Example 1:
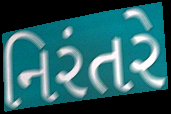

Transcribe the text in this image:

નિરંતરે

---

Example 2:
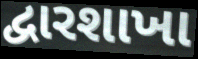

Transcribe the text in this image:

દ્વારશાખા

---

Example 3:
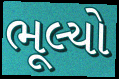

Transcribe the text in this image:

ભૂલ્‍યો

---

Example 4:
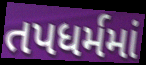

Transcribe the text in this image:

તપધર્મમાં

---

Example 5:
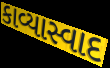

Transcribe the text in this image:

કાવ્યાસ્વાદ